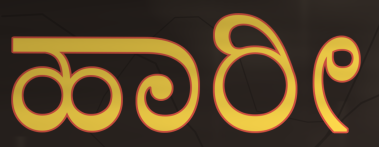
ಹಾರೀ